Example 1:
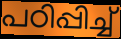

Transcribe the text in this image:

പഠിപ്പിച്ച്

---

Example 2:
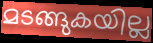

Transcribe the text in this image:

മടങ്ങുകയില്ല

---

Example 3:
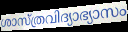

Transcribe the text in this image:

ശാസ്ത്രവിദ്യാഭ്യാസം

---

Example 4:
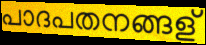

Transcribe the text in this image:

പാദപതനങ്ങള്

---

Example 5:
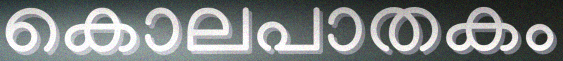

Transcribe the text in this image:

കൊലപാതകം